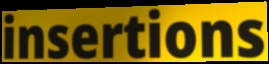
insertions